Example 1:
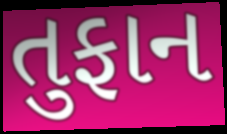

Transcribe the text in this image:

તુફાન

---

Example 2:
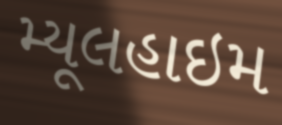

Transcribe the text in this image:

મ્યૂલહાઇમ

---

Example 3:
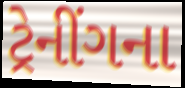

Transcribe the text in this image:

ટ્રેનીંગના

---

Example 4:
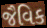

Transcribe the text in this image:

જૈવિક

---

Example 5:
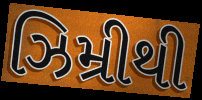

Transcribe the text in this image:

ઝિમ્રીથી